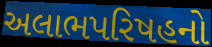
અલાભપરિષહનો